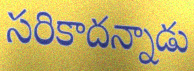
సరికాదన్నాడు